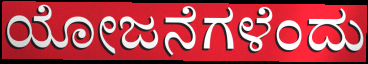
ಯೋಜನೆಗಳೆಂದು